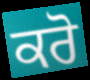
ਕਰੋ